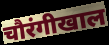
चौरंगीखाल